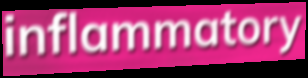
inflammatory